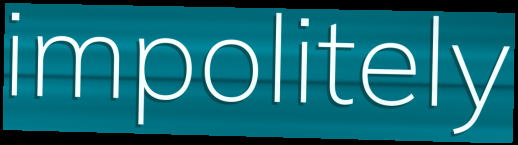
impolitely